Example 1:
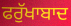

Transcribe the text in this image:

ਫਰੁੱਖਾਬਾਦ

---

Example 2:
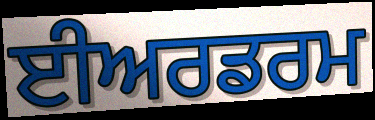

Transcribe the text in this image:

ਈਅਰਡਰਮ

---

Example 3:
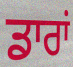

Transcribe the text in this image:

ਡਾਰਾਂ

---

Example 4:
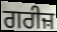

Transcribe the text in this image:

ਗਰੀਜ਼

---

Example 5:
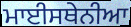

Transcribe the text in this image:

ਮਾਈਸਥੇਨੀਆ